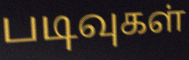
படிவுகள்